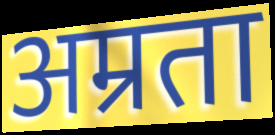
अम्रता